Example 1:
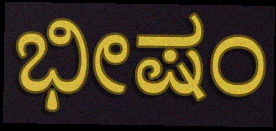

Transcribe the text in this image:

ಭೀಷಂ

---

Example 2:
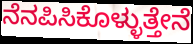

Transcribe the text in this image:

ನೆನಪಿಸಿಕೊಳ್ಳುತ್ತೇನೆ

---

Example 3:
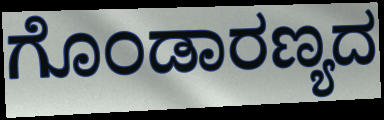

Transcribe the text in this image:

ಗೊಂಡಾರಣ್ಯದ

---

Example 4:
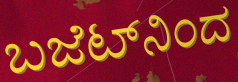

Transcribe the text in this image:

ಬಜೆಟ್‌ನಿಂದ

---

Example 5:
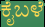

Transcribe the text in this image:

ಕೈಬಳೆ